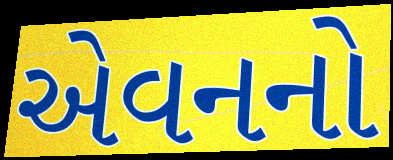
એવનનો